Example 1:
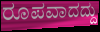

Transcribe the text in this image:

ರೂಪವಾದದ್ದು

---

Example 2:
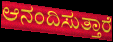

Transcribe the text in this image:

ಆನಂದಿಸುತ್ತಾರೆ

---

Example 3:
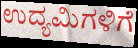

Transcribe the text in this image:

ಉದ್ಯಮಿಗಳಿಗೆ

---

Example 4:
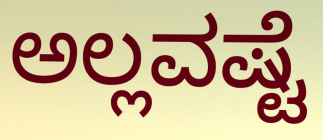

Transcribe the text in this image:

ಅಲ್ಲವಷ್ಟೆ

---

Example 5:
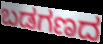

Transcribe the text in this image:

ಬಡಗಣದ